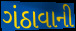
ગંઠાવાની